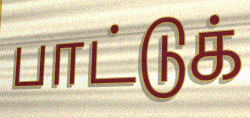
பாட்டுக்